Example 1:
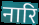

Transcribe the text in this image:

नारि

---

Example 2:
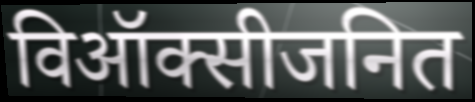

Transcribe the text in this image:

विऑक्सीजनित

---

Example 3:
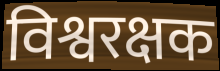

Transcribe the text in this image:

विश्वरक्षक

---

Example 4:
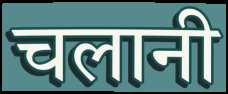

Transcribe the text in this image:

चलानी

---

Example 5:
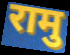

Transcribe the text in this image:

रामु